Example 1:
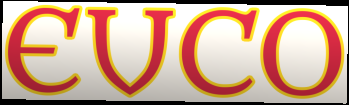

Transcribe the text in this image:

EUCO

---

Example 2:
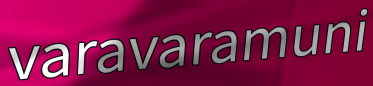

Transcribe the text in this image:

varavaramuni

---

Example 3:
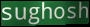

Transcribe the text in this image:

sughosh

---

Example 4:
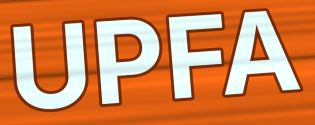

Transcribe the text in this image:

UPFA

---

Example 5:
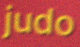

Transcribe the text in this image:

judo